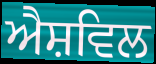
ਐਸ਼ਵਿਲ